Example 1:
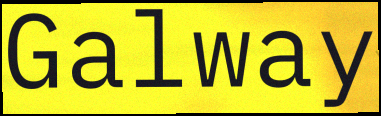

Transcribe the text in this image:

Galway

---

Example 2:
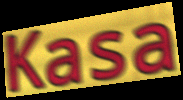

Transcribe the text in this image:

Kasa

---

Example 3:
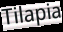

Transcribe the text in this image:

Tilapia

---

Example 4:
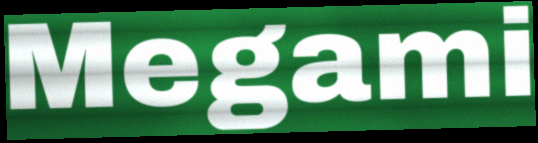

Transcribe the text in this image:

Megami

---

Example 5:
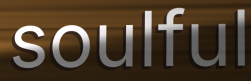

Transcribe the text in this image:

soulful